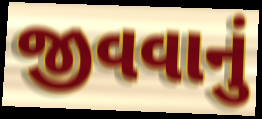
જીવવાનું